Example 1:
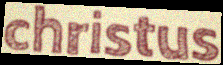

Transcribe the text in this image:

christus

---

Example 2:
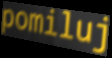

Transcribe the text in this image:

pomiluj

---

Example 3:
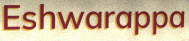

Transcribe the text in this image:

Eshwarappa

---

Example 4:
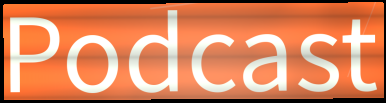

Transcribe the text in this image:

Podcast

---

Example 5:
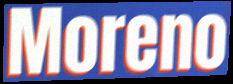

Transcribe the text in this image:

Moreno